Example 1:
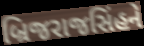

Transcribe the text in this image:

બ્રિજરાજસિંહને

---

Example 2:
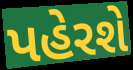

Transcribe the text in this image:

પહેરશે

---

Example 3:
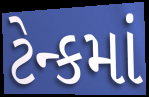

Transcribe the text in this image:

ટેન્કમાં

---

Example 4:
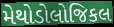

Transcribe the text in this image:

મેથોડોલોજિકલ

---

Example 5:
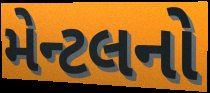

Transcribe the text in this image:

મેન્ટલનો